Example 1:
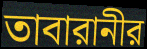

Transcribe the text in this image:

তাবারানীর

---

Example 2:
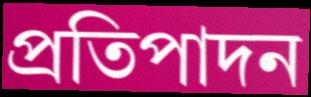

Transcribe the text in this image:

প্রতিপাদন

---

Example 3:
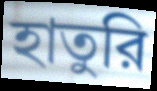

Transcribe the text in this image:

হাতুরি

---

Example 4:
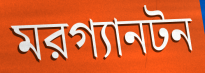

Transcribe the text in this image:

মরগ্যানটন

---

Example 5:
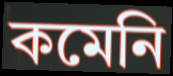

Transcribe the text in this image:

কমেনি